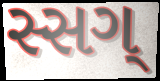
સ્સગ્